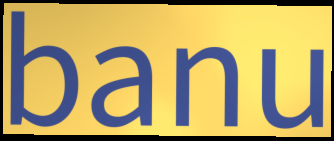
banu